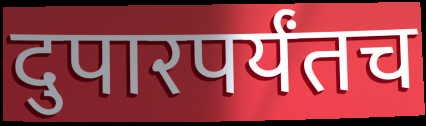
दुपारपर्यंतच